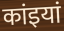
कांइयां